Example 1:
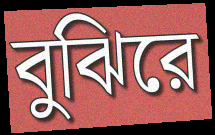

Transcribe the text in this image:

বুঝিরে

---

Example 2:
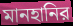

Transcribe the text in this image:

মানহানির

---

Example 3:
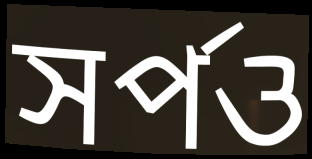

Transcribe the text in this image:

সর্পও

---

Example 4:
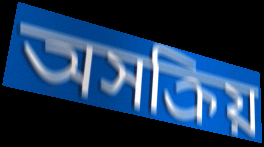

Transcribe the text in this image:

অসক্রিয়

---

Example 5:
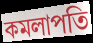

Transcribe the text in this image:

কমলাপতি